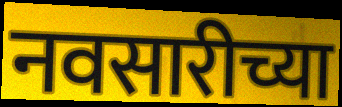
नवसारीच्या